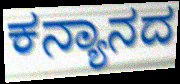
ಕನ್ಯಾನದ